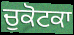
ਚੁਕੋਟਕਾ